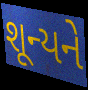
શૂન્યને